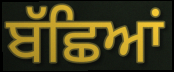
ਬੱਛਿਆਂ